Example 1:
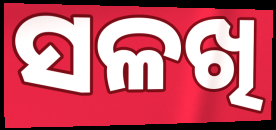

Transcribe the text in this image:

ସଳଖି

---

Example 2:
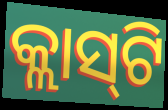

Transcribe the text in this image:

କ୍ଲାସ୍‍ଟି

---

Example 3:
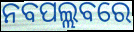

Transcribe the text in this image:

ନବପଲ୍ଲବରେ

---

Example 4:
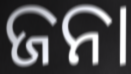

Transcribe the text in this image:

ଜନା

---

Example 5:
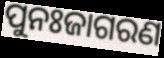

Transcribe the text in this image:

ପୁନଃଜାଗରଣ